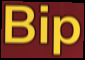
Bip